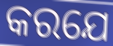
କରଯେ